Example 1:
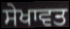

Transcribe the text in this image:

ਸੇਖਾਵਤ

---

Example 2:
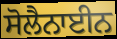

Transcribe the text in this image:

ਸੋਲੈਨਾਈਨ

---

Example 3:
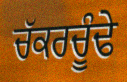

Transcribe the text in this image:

ਚੱਕਰਚੂੰਢੇ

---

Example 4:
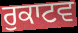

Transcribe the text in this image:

ਰੁਕਾਟਵ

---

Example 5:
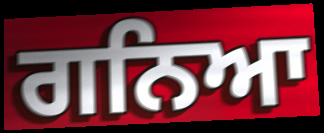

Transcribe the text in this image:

ਗਨਿਆ